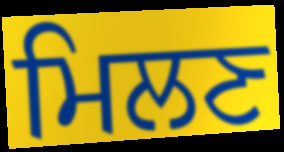
ਮਿਲਣ